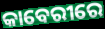
କାବେରୀରେ